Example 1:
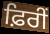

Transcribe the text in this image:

ਫ਼ਿਰੀਂ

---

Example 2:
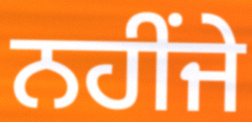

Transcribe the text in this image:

ਨਹੀਂਜੇ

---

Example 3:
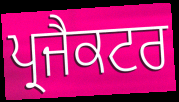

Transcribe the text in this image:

ਪ੍ਰਜੈਕਟਰ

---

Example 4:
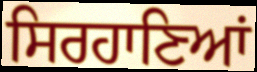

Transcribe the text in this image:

ਸਿਰਹਾਣਿਆਂ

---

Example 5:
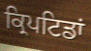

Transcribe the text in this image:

ਕ੍ਰਿਪਟਿਡਾਂ